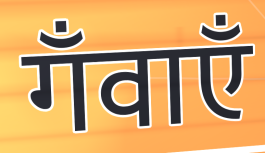
गँवाएँ